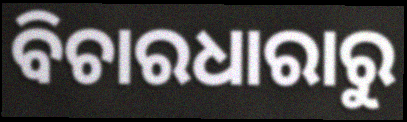
ବିଚାରଧାରାରୁ